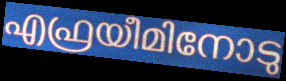
എഫ്രയീമിനോടു